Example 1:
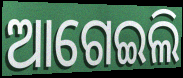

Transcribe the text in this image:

ଆଗେଇଲି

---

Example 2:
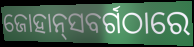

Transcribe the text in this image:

ଜୋହାନ୍‌ସବର୍ଗଠାରେ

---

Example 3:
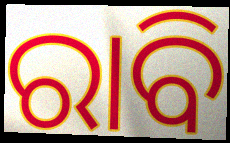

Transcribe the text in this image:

ରାବି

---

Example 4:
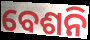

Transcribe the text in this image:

ବେଶନି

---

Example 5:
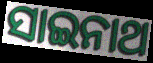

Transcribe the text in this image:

ସାଇନାଥ